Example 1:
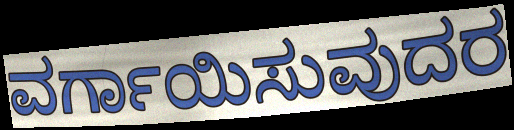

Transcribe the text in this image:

ವರ್ಗಾಯಿಸುವುದರ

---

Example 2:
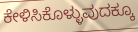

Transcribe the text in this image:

ಕೇಳಿಸಿಕೊಳ್ಳುವುದಕ್ಕೂ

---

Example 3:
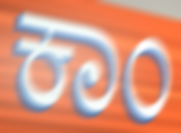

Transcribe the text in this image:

ಕಾಂ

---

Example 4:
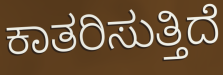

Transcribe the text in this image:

ಕಾತರಿಸುತ್ತಿದೆ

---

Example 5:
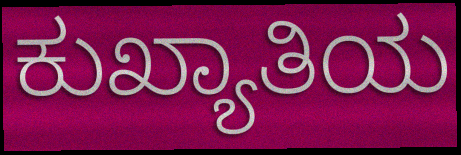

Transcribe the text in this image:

ಕುಖ್ಯಾತಿಯ